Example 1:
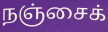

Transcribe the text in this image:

நஞ்சைக்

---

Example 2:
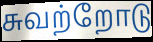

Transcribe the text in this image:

சுவற்றோடு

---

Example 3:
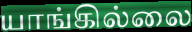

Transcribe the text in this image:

யாங்கில்லை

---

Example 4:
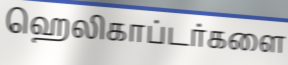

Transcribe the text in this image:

ஹெலிகாப்டர்களை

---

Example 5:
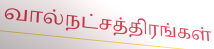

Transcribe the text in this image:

வால்நட்சத்திரங்கள்